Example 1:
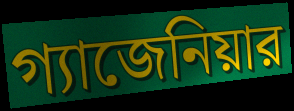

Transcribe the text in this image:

গ্যাজেনিয়ার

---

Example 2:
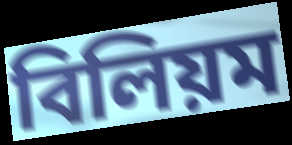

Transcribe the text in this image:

বিলিয়ম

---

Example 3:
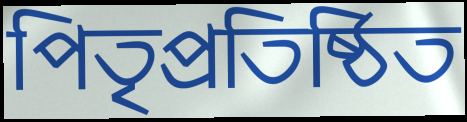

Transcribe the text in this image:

পিতৃপ্রতিষ্ঠিত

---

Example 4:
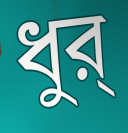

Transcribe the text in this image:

ধুর্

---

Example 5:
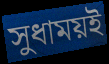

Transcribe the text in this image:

সুধাময়ই